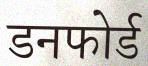
डनफोर्ड